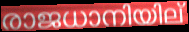
രാജധാനിയില്